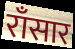
राँसार